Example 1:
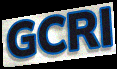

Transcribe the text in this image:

GCRI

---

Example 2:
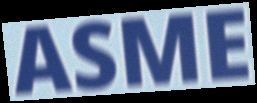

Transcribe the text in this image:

ASME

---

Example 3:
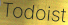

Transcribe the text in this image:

Todoist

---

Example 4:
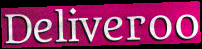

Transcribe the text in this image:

Deliveroo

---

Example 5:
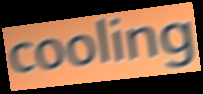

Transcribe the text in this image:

cooling